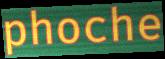
phoche